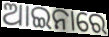
ଆଇନାରେ